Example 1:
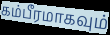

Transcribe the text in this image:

கம்பீரமாகவும்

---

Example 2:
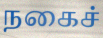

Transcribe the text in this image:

நகைச்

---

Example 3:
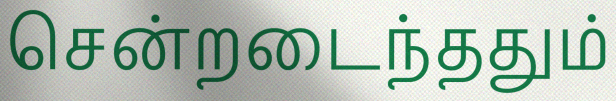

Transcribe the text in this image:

சென்றடைந்ததும்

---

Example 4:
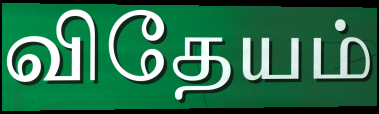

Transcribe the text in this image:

விதேயம்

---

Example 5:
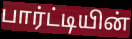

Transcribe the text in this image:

பார்ட்டியின்